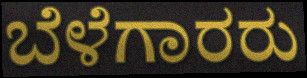
ಬೆಳೆಗಾರರು